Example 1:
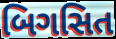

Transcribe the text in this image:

બિગસિત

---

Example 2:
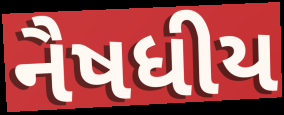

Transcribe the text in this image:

નૈષધીય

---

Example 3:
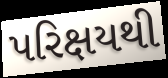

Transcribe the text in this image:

પરિક્ષયથી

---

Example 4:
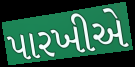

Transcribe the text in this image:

પારખીએ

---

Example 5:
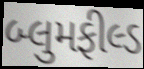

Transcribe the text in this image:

બ્લુમફીલ્ડ